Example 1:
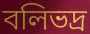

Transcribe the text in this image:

বলিভদ্র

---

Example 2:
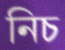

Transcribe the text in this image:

নিচ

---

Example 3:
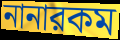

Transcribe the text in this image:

নানারকম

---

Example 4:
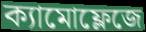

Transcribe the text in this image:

ক্যামোফ্লেজে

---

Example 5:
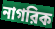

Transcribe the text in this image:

নাগরিক